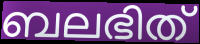
ബലഭിത്